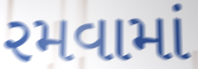
રમવામાં